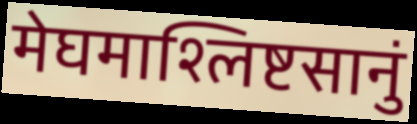
मेघमाश्लिष्टसानुं